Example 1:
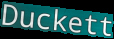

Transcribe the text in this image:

Duckett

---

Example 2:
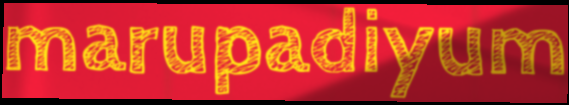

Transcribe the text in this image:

marupadiyum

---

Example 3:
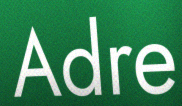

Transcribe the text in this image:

Adre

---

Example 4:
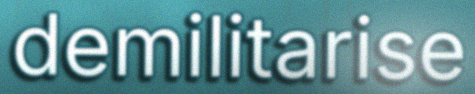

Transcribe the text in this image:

demilitarise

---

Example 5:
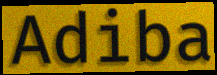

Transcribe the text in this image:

Adiba